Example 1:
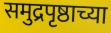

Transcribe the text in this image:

समुद्रपृष्ठाच्या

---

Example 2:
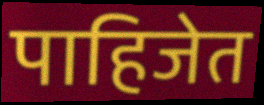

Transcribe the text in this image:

पाहिजेत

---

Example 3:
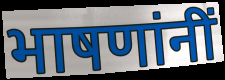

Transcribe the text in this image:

भाषणांनीं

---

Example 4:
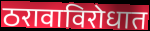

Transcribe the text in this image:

ठरावाविरोधात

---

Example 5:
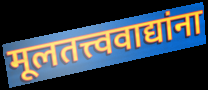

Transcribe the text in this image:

मूलतत्त्ववाद्यांना